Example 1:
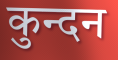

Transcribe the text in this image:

कुन्‍दन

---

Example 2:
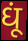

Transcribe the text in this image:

धूं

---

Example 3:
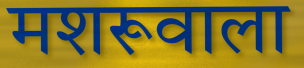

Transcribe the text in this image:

मशरूवाला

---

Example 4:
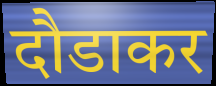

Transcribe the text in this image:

दौडाकर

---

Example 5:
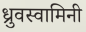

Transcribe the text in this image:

ध्रुवस्वामिनी